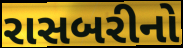
રાસબરીનો